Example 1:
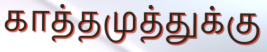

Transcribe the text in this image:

காத்தமுத்துக்கு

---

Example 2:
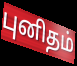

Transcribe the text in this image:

புனிதம்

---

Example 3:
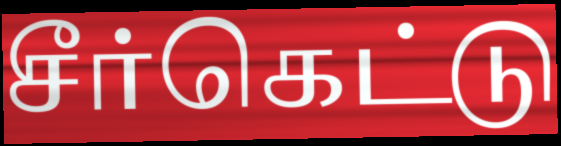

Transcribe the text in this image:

சீர்கெட்டு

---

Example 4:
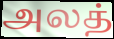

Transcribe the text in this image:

அலத்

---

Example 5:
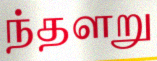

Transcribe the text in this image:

ந்தளறு